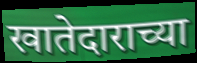
खातेदाराच्या